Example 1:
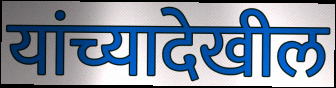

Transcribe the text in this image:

यांच्यादेखील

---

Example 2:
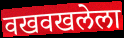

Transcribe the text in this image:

वखवखलेला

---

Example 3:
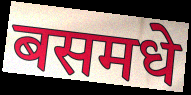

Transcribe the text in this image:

बसमधे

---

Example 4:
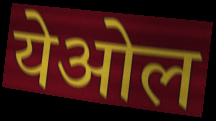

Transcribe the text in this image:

येओल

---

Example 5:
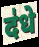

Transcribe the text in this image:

द॑धे